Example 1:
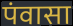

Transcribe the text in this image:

पंवासा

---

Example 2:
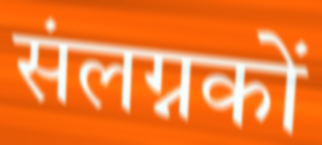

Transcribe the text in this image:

संलग्नकों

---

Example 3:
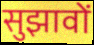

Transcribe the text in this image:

सुझावों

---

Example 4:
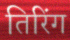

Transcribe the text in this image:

तिरिंग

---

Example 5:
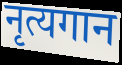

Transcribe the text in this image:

नृत्यगान